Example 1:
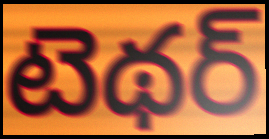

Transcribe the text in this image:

టెథర్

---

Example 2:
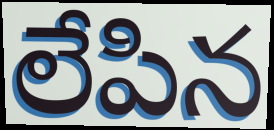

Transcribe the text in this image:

లేపిన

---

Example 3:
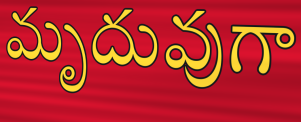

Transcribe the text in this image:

మృదువుగా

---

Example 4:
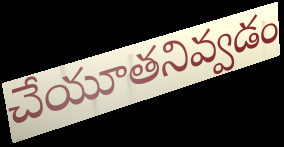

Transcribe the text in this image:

చేయూతనివ్వడం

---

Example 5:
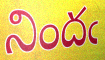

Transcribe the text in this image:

నిందఁ